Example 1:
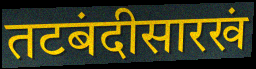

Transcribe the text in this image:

तटबंदीसारखं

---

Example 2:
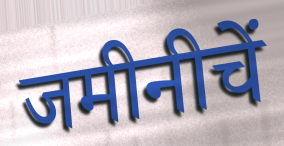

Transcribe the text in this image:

जमीनीचें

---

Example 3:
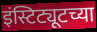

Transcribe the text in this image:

इंस्टिट्यूटच्या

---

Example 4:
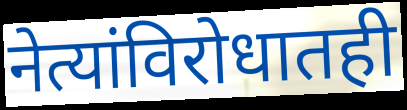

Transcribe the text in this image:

नेत्यांविरोधातही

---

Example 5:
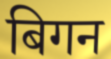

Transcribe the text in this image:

बिगन